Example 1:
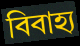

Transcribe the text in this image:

বিবাহ্য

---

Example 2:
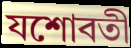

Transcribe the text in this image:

যশোবতী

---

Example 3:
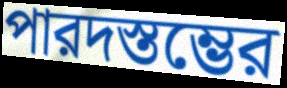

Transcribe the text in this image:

পারদস্তম্ভের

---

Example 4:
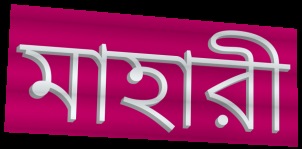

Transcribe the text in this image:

মাহারী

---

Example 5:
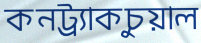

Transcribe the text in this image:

কনট্র্যাকচুয়াল